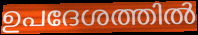
ഉപദേശത്തിൽ